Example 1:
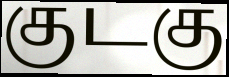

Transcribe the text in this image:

குடகு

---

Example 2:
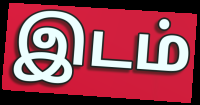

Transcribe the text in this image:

இடம்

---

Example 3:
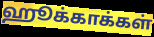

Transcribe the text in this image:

ஹூக்காக்கள்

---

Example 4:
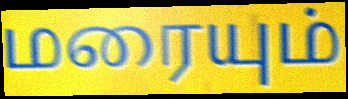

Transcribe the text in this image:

மரையும்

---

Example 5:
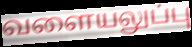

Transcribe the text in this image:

வளையலுப்பு